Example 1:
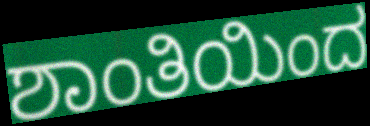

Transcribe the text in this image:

ಶಾಂತಿಯಿಂದ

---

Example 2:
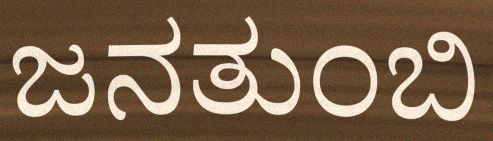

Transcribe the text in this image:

ಜನತುಂಬಿ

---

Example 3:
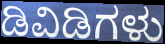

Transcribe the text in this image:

ಡಿವಿಡಿಗಳು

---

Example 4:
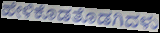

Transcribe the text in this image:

ಹೇಳಿಕೊಡತೊಡಗಿದಳು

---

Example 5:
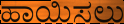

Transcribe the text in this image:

ಹಾಯಿಸಲು